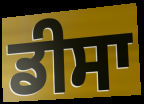
ਡੀਸਾ